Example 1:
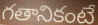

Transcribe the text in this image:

గతానికంటే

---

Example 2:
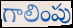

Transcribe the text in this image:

గాలింపు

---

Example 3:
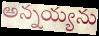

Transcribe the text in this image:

అన్నయ్యను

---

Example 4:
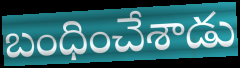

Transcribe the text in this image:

బంధించేశాడు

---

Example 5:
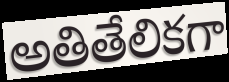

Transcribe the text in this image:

అతితేలికగా